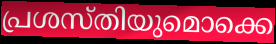
പ്രശസ്തിയുമൊക്കെ